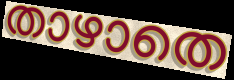
താഴാതെ